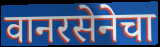
वानरसेनेचा